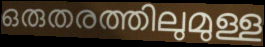
ഒരുതരത്തിലുമുള്ള